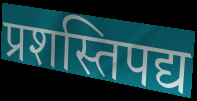
प्रशस्तिपद्य